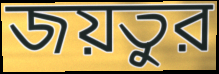
জয়তুর